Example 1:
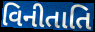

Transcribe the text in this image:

વિનીતાતિ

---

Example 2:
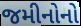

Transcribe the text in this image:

જમીનોનો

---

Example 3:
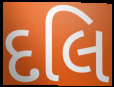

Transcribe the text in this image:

દલિ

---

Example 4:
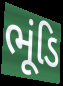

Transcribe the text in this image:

ભૂંડિ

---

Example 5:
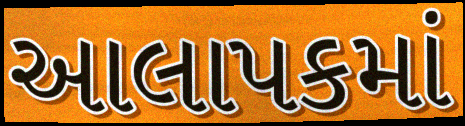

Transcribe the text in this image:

આલાપકમાં